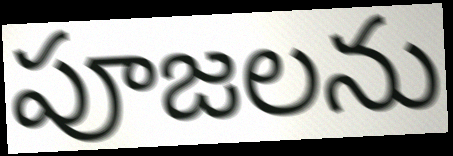
పూజలను